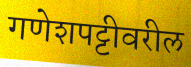
गणेशपट्टीवरील